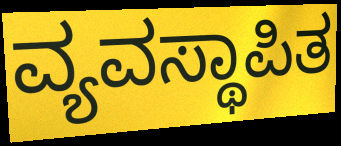
ವ್ಯವಸ್ಥಾಪಿತ